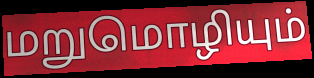
மறுமொழியும்